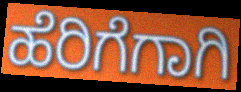
ಹೆರಿಗೆಗಾಗಿ